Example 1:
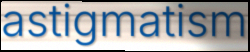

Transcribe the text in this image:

astigmatism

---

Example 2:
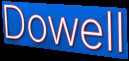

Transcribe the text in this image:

Dowell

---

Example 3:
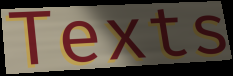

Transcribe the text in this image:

Texts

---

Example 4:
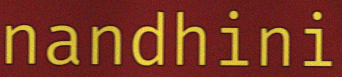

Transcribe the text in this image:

nandhini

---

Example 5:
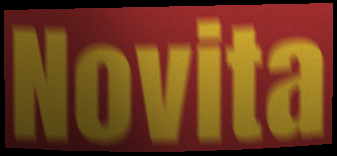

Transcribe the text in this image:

Novita